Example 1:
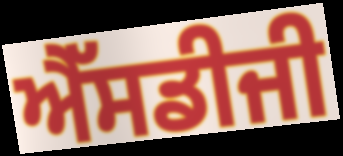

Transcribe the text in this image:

ਐੱਸਡੀਜੀ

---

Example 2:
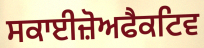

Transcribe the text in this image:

ਸਕਾਈਜ਼ੋਅਫੈਕਟਿਵ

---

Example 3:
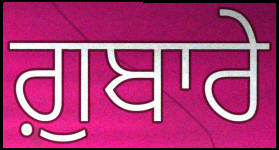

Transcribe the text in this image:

ਗ਼ੁਬਾਰੇ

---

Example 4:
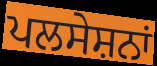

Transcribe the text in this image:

ਪਲਸੇਸ਼ਨਾਂ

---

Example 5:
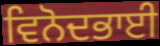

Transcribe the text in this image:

ਵਿਨੋਦਭਾਈ